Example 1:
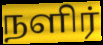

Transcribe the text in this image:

நளிர்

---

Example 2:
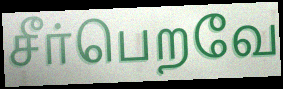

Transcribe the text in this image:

சீர்பெறவே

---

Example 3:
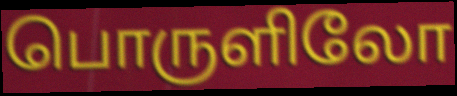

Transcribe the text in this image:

பொருளிலோ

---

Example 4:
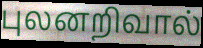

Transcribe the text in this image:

புலனறிவால்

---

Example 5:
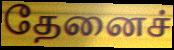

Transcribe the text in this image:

தேனைச்